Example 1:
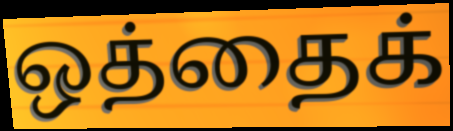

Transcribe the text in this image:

ஒத்தைக்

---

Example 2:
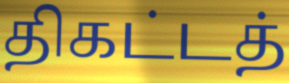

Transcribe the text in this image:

திகட்டத்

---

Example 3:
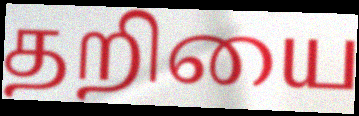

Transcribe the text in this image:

தறியை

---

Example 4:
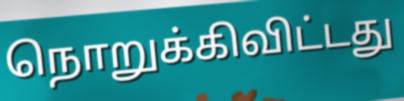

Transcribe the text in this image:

நொறுக்கிவிட்டது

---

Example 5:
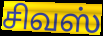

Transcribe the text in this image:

சிவஸ்